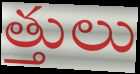
త్తులు